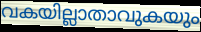
വകയില്ലാതാവുകയും